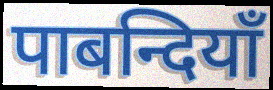
पाबन्दियाँ